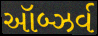
ઑબ્ઝર્વ